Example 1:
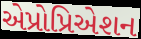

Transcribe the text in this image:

એપ્રોપ્રિએશન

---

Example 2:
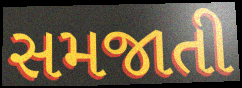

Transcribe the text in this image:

સમજાતી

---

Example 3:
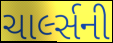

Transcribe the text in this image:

ચાર્લ્સની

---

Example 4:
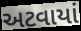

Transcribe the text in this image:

અટવાયાં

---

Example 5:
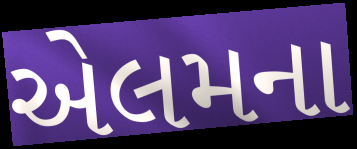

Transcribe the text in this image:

એલમના